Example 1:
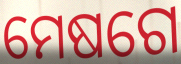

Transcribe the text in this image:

ମେଷଗେ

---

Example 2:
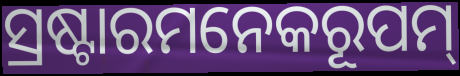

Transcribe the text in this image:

ସ୍ରଷ୍ଟାରମନେକରୂପମ୍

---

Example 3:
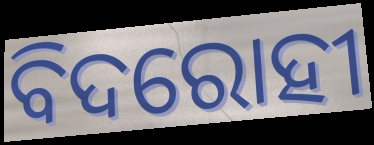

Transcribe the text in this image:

ବିଦରୋହୀ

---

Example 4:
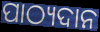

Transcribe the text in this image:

ପାଠ୍ୟଦାନ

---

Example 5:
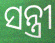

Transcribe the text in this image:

ସନ୍ତ୍ରୀ